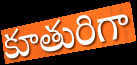
కూతురిగా